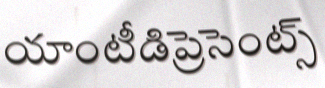
యాంటీడిప్రెసెంట్స్